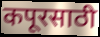
कपूरसाठी